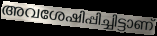
അവശേഷിപ്പിച്ചിട്ടാണ്